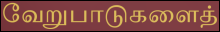
வேறுபாடுகளைத்